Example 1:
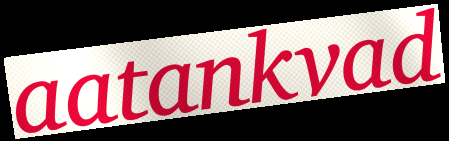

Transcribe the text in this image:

aatankvad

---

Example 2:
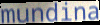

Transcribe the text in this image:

mundina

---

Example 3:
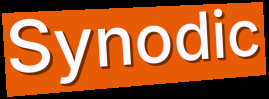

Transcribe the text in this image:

Synodic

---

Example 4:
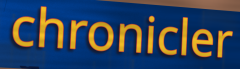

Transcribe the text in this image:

chronicler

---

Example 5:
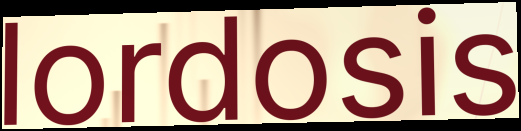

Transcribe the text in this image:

lordosis